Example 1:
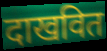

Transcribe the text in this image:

दाखवित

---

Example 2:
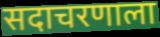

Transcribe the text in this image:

सदाचरणाला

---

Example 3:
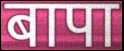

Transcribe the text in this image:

बापा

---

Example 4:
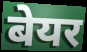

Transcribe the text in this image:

बेयर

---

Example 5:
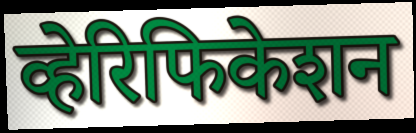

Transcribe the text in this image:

व्हेरिफिकेशन